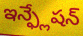
ఇన్ఫ్లేషన్